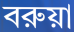
বরুয়া